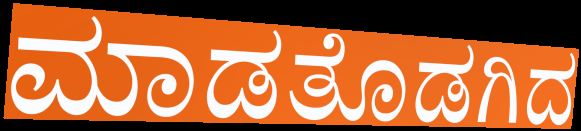
ಮಾಡತೊಡಗಿದ